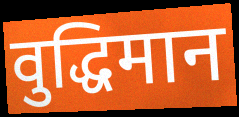
वुद्धिमान